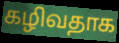
கழிவதாக